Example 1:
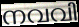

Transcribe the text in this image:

നവവി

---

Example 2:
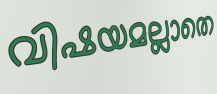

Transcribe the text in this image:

വിഷയമല്ലാതെ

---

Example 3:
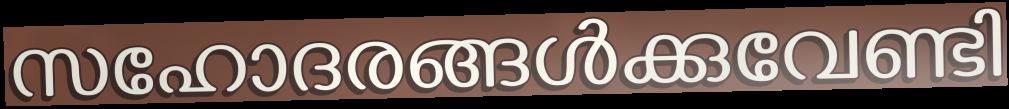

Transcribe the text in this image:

സഹോദരങ്ങൾക്കുവേണ്ടി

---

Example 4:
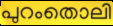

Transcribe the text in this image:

പുറംതൊലി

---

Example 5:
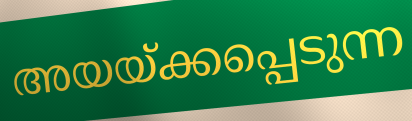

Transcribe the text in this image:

അയയ്ക്കപ്പെടുന്ന